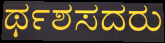
ರ್ಥಶಸದರು